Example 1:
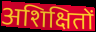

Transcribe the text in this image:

अशिक्षितों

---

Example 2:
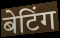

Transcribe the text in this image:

बेटिंग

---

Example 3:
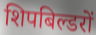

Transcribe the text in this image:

शिपबिल्डरों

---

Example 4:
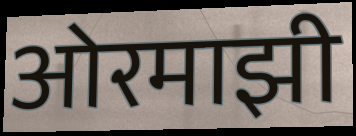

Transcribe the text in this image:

ओरमाझी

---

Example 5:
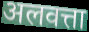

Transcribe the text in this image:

अलवत्ता